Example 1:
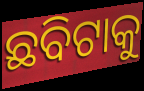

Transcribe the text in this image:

ଛବିଟାକୁ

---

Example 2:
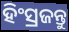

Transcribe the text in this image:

ହିଂସ୍ରଜନ୍ତୁ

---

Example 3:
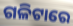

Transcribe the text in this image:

ଗଳିଟାରେ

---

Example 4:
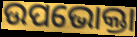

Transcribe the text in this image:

ଉପଭୋକ୍ତା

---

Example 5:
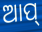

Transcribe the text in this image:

ଆପ୍